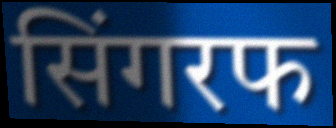
सिंगरफ